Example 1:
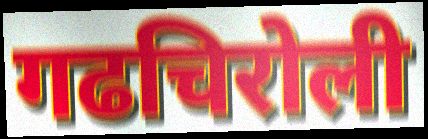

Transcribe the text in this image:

गढचिरोली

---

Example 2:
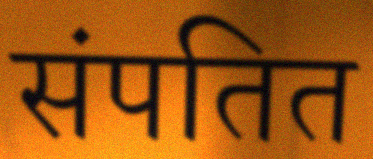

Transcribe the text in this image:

संपतित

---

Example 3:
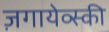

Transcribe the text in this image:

ज़गायेव्स्की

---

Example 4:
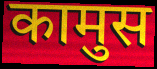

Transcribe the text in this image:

कामुस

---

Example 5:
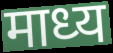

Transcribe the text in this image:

माध्‍य